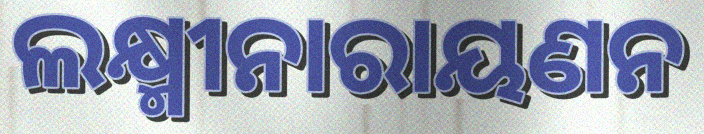
ଲକ୍ଷ୍ମୀନାରାୟଣନ